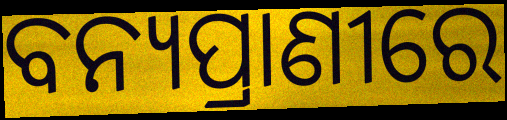
ବନ୍ୟପ୍ରାଣୀରେ